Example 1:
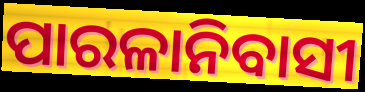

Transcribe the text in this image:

ପାରଳାନିବାସୀ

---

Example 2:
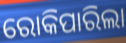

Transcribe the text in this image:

ରୋକିପାରିଲା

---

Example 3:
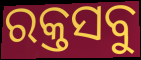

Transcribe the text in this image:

ରକ୍ତସବୁ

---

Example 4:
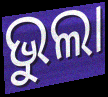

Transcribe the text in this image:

ଭୁଲା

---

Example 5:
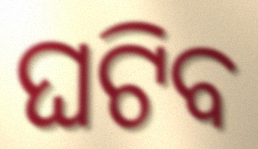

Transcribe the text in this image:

ଘଟିବ